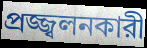
প্রজ্জ্বলনকারী